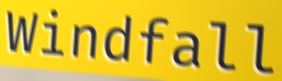
Windfall